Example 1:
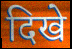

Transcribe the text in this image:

दिखे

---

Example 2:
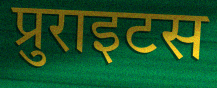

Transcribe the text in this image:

प्रुराइटस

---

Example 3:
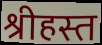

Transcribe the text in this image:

श्रीहस्त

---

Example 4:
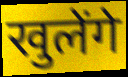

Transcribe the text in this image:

खुलेंगे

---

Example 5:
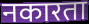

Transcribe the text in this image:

नकारता